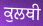
ਕੁਲਥੀ